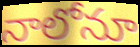
నాలోనూ